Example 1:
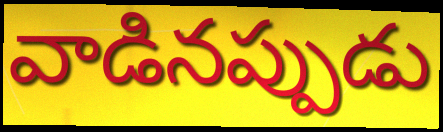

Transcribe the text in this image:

వాడినప్పుడు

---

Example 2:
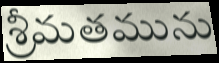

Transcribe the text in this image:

శ్రీమతమును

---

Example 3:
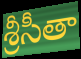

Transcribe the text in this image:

శ్రీసీతా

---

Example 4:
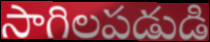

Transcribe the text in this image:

సాగిలపడుడి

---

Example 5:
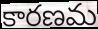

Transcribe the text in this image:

కారణమ